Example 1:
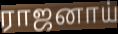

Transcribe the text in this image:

ராஜனாய்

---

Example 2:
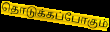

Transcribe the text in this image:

தொடுக்கப்போகும்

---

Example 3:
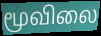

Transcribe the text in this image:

மூவிலை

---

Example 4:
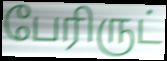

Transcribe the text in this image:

பேரிருட்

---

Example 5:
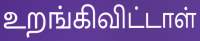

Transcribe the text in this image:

உறங்கிவிட்டாள்